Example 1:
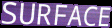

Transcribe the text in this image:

SURFACE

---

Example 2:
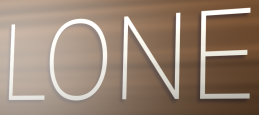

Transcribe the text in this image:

LONE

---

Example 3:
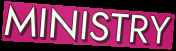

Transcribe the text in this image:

MINISTRY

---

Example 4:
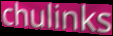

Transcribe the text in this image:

chulinks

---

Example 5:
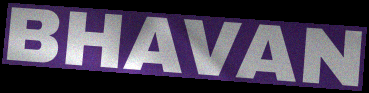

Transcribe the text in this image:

BHAVAN